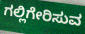
ಗಲ್ಲಿಗೇರಿಸುವ